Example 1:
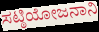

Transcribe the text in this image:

ಸಟ್ಠಿಯೋಜನಾನಿ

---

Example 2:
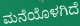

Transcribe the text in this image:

ಮನೆಯೊಳಗಿದೆ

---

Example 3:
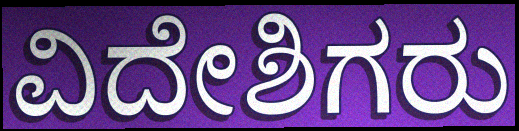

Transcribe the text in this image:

ವಿದೇಶಿಗರು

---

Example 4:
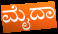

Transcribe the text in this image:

ಮೈದಾ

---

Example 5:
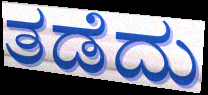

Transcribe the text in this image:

ತಡೆದು